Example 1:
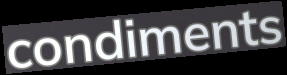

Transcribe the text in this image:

condiments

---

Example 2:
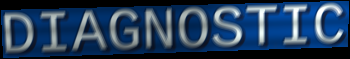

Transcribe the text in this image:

DIAGNOSTIC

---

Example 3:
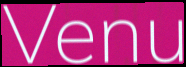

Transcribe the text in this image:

Venu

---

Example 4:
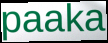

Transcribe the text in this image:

paaka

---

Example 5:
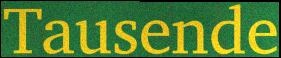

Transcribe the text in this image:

Tausende